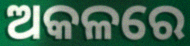
ଅକଳରେ